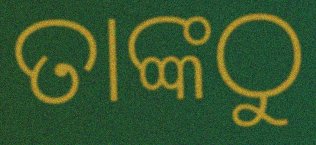
ତାଙ୍କଠୁ